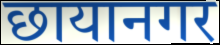
छायानगर